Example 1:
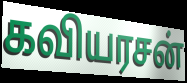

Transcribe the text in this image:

கவியரசன்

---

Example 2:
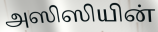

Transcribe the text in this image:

அஸிஸியின்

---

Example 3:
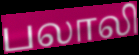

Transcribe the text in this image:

பலாலி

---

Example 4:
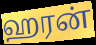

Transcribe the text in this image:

ஹரன்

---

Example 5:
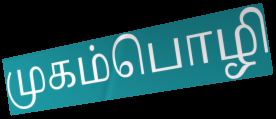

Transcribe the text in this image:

முகம்பொழி